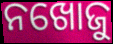
ନଖୋଜୁ